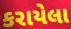
કરાયેલા